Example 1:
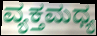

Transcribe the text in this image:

ವ್ಯಕ್ತಮಧ್ಯ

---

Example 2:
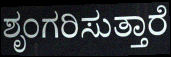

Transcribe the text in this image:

ಶೃಂಗರಿಸುತ್ತಾರೆ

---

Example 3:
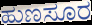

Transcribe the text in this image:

ಹುಣಸೂರ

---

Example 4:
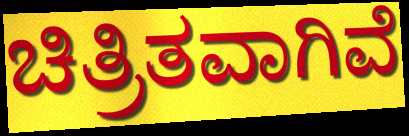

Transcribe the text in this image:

ಚಿತ್ರಿತವಾಗಿವೆ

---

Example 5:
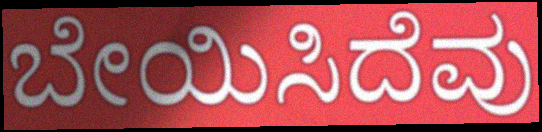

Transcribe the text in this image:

ಬೇಯಿಸಿದೆವು